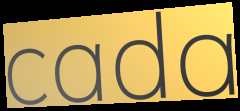
cada